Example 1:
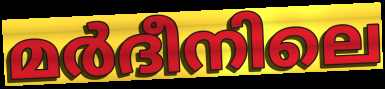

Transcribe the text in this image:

മർദീനിലെ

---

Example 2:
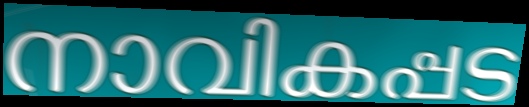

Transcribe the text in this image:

നാവികപ്പട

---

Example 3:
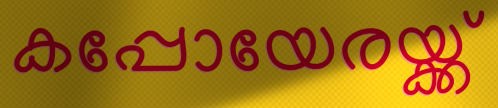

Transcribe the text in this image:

കപ്പോയേരയ്ക്ക്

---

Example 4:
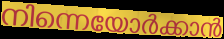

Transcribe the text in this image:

നിന്നെയോർക്കാൻ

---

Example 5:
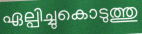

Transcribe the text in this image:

ഏല്പിച്ചുകൊടുത്തു